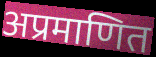
अप्रमाणित